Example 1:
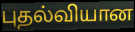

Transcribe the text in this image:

புதல்வியான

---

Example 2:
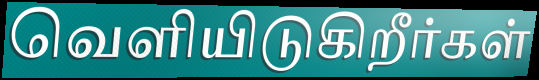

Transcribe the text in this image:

வெளியிடுகிறீர்கள்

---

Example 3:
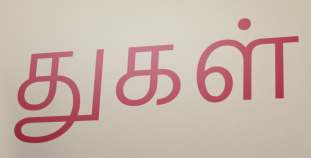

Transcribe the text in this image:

துகள்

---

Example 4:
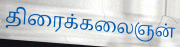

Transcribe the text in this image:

திரைக்கலைஞன்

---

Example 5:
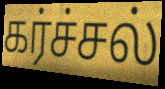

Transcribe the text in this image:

கர்ச்சல்